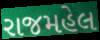
રાજમહેલ